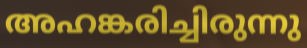
അഹങ്കരിച്ചിരുന്നു